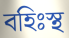
বহিঃস্থ